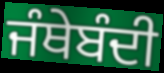
ਜੰਥੇਬੰਦੀ